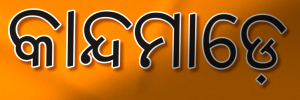
କାନ୍ଦମାଡ଼େ